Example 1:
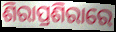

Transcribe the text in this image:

ଶିରାପ୍ରଶିରାରେ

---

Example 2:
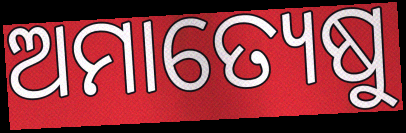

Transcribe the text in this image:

ଅମାତ୍ୟେଷୁ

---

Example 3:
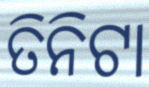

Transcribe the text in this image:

ତିନିଟା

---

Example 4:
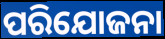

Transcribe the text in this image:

ପରିଯୋଜନା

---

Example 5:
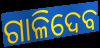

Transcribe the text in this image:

ଗାଳିଦେବ